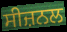
ਸੀਜ਼ਨਲ